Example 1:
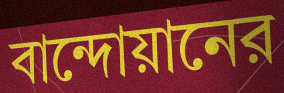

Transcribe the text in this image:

বান্দোয়ানের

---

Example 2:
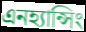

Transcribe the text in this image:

এনহ্যান্সিং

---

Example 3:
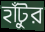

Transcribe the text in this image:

হাঁটুর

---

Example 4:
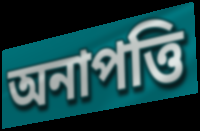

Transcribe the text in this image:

অনাপত্তি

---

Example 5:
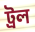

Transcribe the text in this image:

ট্রল